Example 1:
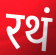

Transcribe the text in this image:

रथं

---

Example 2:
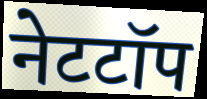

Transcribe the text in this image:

नेटटॉप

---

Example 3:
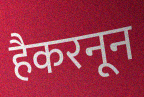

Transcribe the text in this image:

हैकरनून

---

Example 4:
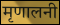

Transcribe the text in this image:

मृणालनी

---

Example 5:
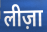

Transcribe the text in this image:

लीज़ा